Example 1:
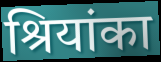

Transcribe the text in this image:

श्रियांका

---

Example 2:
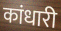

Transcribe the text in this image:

कांधारी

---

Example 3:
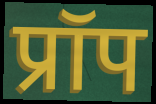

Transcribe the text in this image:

प्रॉप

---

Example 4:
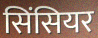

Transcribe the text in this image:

सिंसियर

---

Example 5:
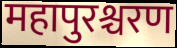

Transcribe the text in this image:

महापुरश्चरण